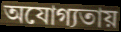
অযোগ্যতায়